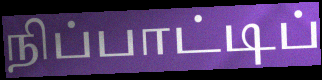
நிப்பாட்டிப்